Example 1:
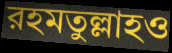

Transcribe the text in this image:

রহমতুল্লাহও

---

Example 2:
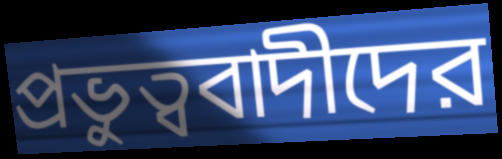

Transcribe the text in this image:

প্রভুত্ববাদীদের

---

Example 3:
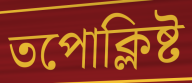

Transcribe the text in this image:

তপোক্লিষ্ট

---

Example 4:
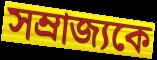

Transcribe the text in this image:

সম্রাজ্যকে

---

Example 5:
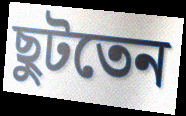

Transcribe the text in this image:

ছুটতেন